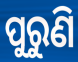
ପୁରୁଣି